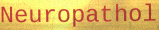
Neuropathol